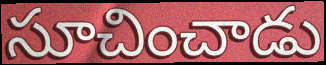
సూచించాడు